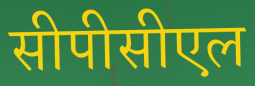
सीपीसीएल